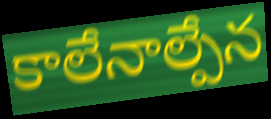
కాలేనాల్పేన